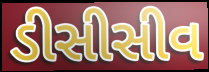
ડીસીસીવ